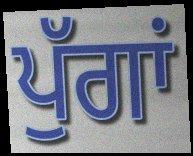
ਪੁੱਗਾਂ